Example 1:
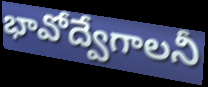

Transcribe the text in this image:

భావోద్వేగాలనీ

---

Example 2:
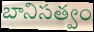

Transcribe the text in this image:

బానిసత్వం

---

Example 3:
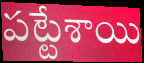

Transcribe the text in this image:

పట్టేశాయి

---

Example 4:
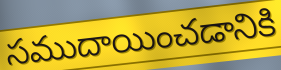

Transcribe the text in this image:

సముదాయించడానికి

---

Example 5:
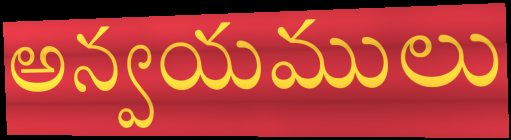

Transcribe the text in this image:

అన్వయములు